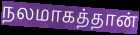
நலமாகத்தான்